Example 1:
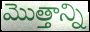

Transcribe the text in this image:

మొత్తాన్ని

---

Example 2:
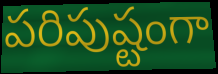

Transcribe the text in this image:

పరిపుష్టంగా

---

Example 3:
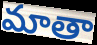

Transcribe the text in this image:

మాతా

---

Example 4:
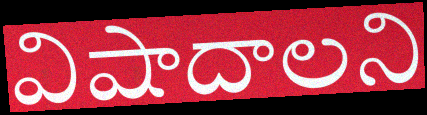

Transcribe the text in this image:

విషాదాలని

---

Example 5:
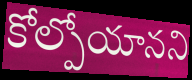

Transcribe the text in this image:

కోల్పోయానని